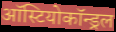
ऑस्टियोकॉन्ड्रल